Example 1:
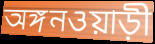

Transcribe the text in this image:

অঙ্গনওয়াড়ী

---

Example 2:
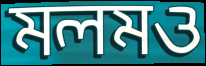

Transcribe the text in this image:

মলমও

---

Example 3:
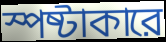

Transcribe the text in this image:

স্পষ্টাকারে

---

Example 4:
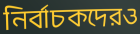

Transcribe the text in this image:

নির্বাচকদেরও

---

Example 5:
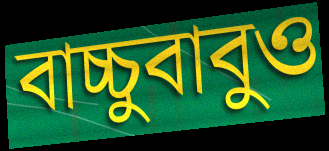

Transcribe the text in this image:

বাচ্চুবাবুও